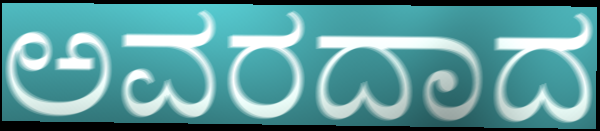
ಅವರದಾದ